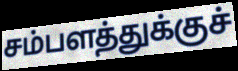
சம்பளத்துக்குச்